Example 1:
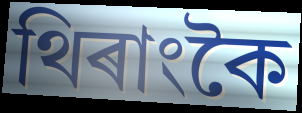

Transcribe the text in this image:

থিৰাংকৈ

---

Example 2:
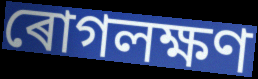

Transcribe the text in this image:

ৰোগলক্ষণ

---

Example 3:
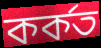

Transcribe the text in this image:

কৰ্কত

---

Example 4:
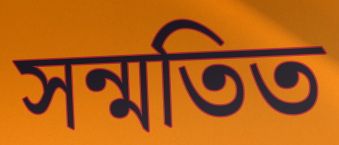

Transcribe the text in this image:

সন্মতিত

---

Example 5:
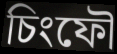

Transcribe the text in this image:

চিংফৌ